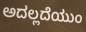
ಅದಲ್ಲದೆಯುಂ